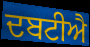
ਦਬਟੀਐ